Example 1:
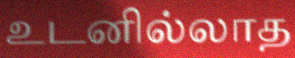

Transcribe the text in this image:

உடனில்லாத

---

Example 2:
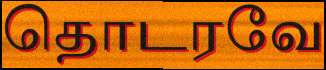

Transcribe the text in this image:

தொடரவே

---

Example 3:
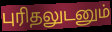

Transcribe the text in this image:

புரிதலுடனும்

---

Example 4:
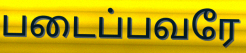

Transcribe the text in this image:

படைப்பவரே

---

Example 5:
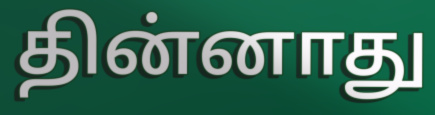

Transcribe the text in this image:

தின்னாது